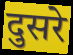
दुसरे